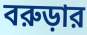
বরুড়ার